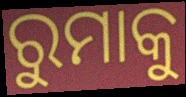
ରୁମାକୁ